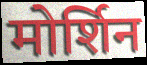
मोर्शिन